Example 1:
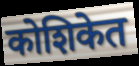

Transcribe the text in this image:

कोशिकेत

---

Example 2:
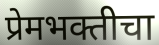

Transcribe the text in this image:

प्रेमभक्तीचा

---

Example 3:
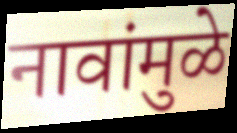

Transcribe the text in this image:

नावांमुळे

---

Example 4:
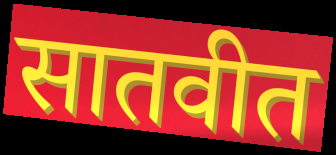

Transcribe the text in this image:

सातवीत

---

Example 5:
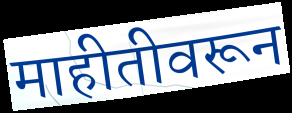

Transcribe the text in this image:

माहीतीवरून